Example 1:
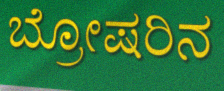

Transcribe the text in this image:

ಬ್ರೋಷರಿನ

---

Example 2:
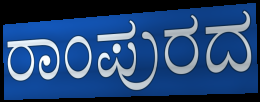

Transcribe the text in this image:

ರಾಂಪುರದ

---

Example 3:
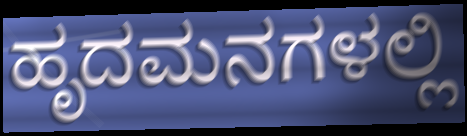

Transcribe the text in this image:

ಹೃದಮನಗಳಲ್ಲಿ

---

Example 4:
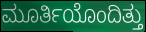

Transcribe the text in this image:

ಮೂರ್ತಿಯೊಂದಿತ್ತು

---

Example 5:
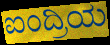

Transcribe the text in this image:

ಐಂದ್ರಿಯ